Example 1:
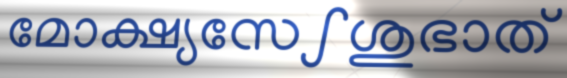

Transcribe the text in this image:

മോക്ഷ്യസേഽശുഭാത്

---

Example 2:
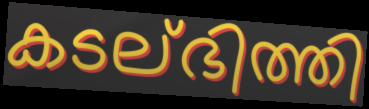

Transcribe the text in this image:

കടല്ഭിത്തി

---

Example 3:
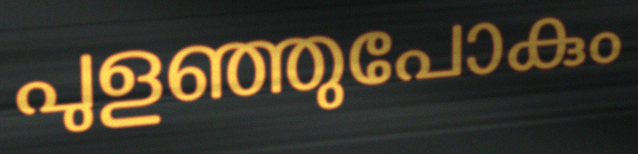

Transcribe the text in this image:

പുളഞ്ഞുപോകും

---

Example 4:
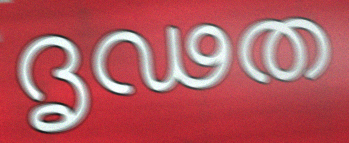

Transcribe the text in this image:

ദൃഢത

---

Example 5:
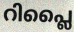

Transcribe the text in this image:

റിപ്ലൈ